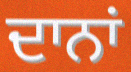
ਦਾਨਾਂ